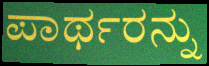
ಪಾರ್ಥರನ್ನು